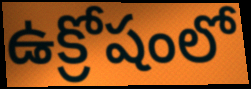
ఉక్రోషంలో